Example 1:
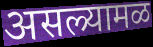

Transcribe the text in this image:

असल्यामळ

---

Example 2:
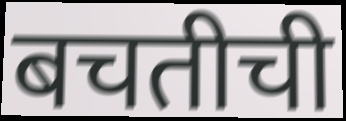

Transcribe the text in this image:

बचतीची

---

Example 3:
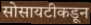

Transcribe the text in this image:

सोसायटीकडून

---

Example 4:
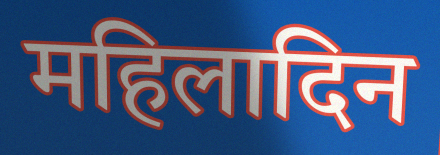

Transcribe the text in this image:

महिलादिन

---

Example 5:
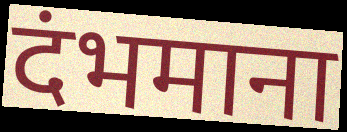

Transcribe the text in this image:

दंभमाना